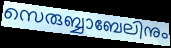
സെരുബ്ബാബേലിനും